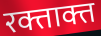
रक्ताक्त